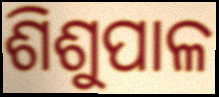
ଶିଶୁପାଳ